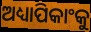
ଅଧ୍ୟାପିକାଂକୁ